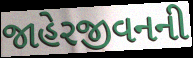
જાહેરજીવનની